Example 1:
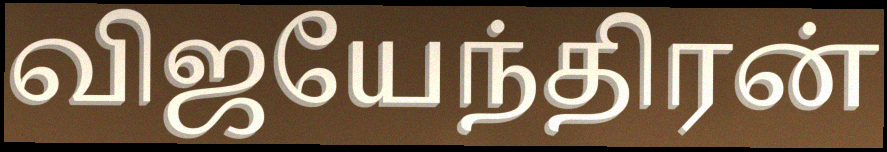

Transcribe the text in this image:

விஜயேந்திரன்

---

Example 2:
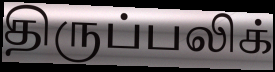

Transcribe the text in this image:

திருப்பலிக்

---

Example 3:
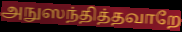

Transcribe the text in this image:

அநுஸந்தித்தவாறே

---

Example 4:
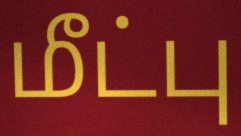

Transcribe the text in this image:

மீட்பு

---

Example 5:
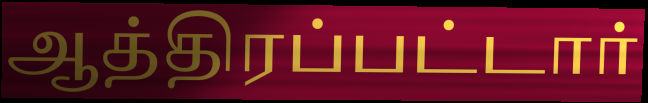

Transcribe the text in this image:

ஆத்திரப்பட்டார்